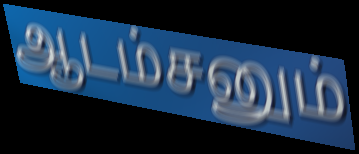
ஆடம்சனும்